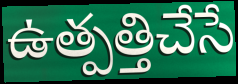
ఉత్పత్తిచేసే